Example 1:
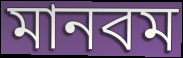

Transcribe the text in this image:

মানবম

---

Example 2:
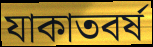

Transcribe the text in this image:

যাকাতবর্ষ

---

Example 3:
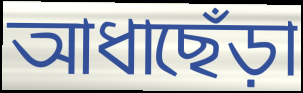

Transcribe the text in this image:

আধাছেঁড়া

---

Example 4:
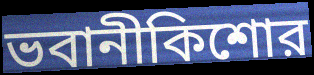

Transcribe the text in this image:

ভবানীকিশোর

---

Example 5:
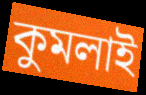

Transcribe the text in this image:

কুমলাই